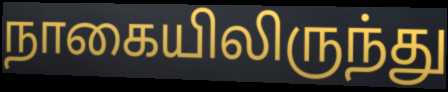
நாகையிலிருந்து